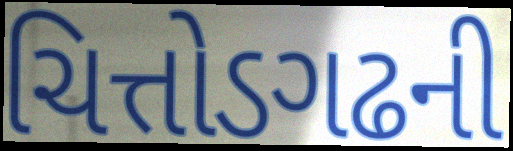
ચિત્તોડગઢની